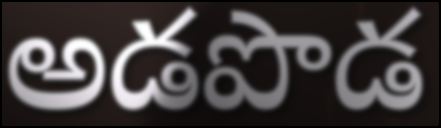
అడపొడ